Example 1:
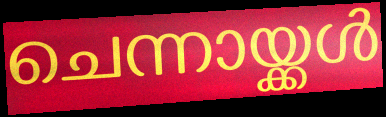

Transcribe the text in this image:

ചെന്നായ്ക്കൾ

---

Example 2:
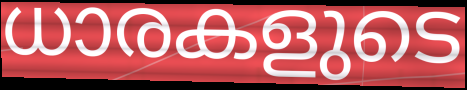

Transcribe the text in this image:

ധാരകളുടെ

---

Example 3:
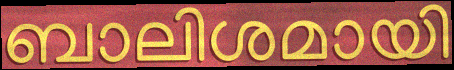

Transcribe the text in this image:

ബാലിശമായി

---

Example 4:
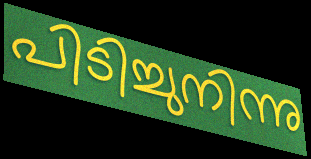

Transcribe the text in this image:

പിടിച്ചുനിന്നു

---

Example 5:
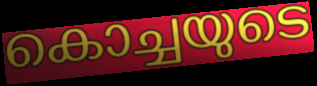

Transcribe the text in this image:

കൊച്ചയുടെ